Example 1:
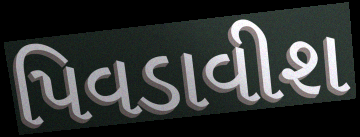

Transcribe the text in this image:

પિવડાવીશ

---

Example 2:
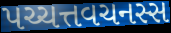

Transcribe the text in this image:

પચ્ચત્તવચનસ્સ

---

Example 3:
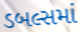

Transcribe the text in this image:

ડબલ્સમાં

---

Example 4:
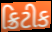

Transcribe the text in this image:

ક્રિટીક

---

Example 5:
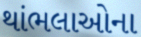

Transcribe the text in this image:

થાંભલાઓના